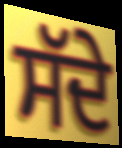
ਸੱਦੇ